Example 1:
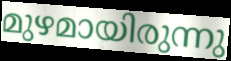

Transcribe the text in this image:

മുഴമായിരുന്നു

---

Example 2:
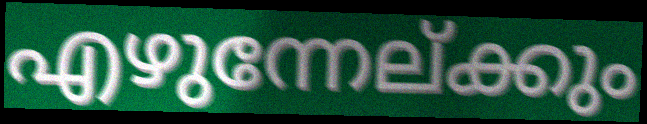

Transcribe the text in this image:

എഴുന്നേല്ക്കും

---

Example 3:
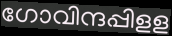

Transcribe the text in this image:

ഗോവിന്ദപ്പിളള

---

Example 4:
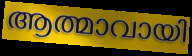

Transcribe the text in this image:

ആത്മാവായി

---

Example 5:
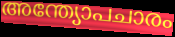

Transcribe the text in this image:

അന്ത്യോപചാരം